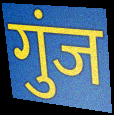
गुंज